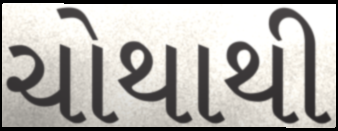
ચોથાથી